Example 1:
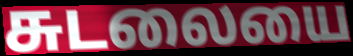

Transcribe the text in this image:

சுடலையை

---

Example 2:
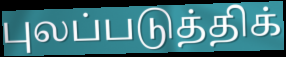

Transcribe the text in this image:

புலப்படுத்திக்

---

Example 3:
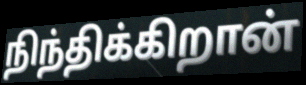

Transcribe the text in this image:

நிந்திக்கிறான்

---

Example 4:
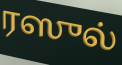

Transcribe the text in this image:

ரஸுல்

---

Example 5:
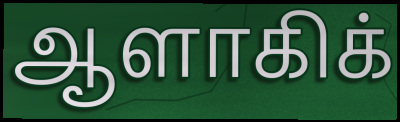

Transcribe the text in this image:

ஆளாகிக்